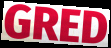
GRED